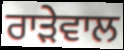
ਰਾੜੇਵਾਲ